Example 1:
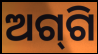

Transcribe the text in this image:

ଅଗ୍‌ଗି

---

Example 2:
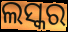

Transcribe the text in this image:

ଲସ୍କର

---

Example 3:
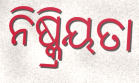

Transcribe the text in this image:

ନିଷ୍କ୍ରିୟତା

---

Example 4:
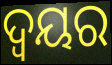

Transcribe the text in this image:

ଦ୍ବୟର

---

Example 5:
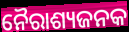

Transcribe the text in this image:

ନୈରାଶ୍ୟଜନକ